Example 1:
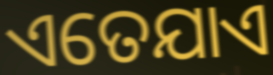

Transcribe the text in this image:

ଏତେଯାଏ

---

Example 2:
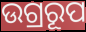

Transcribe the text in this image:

ଉଗ୍ରରୂପ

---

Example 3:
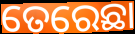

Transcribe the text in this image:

ତେରେଛା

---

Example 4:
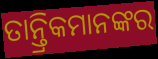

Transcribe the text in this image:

ତାନ୍ତ୍ରିକମାନଙ୍କର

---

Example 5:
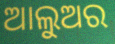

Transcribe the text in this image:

ଆଲୁଅର